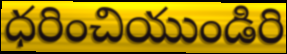
ధరించియుండిరి